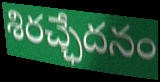
శిరచ్ఛేదనం